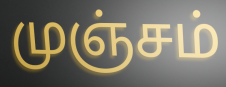
முஞ்சம்